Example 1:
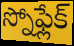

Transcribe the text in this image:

స్నోఫ్లేక్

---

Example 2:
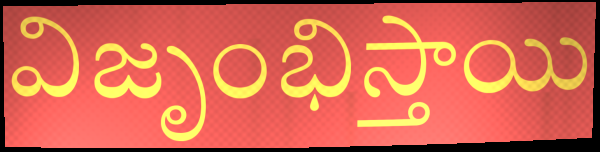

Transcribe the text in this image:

విజృంభిస్తాయి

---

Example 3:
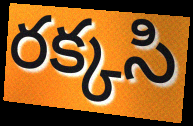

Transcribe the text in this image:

రక్కసి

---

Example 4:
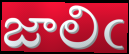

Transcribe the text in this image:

జాలిఁ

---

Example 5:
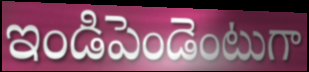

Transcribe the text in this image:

ఇండిపెండెంటుగా